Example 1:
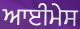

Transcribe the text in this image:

ਆਈਮੇਸ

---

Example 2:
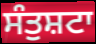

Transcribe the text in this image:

ਸੰਤੁਸ਼ਟਾ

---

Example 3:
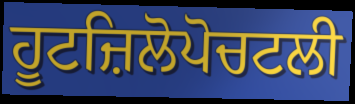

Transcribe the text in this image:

ਹੂਟਜ਼ਿਲੋਪੋਚਟਲੀ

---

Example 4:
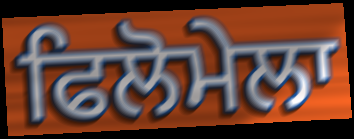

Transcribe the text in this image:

ਫਿਲੋਮੇਲਾ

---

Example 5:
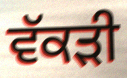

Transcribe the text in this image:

ਵੱਕੜੀ